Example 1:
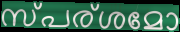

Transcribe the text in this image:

സ്പര്ശമോ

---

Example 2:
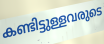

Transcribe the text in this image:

കണ്ടിട്ടുള്ളവരുടെ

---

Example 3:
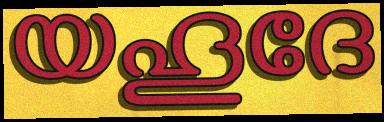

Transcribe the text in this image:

യഹൂദേ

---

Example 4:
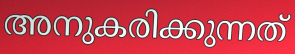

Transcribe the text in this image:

അനുകരിക്കുന്നത്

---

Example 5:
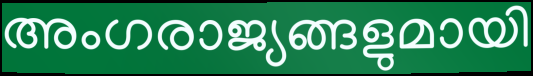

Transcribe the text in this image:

അംഗരാജ്യങ്ങളുമായി